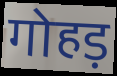
गोहड़